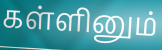
கள்ளினும்